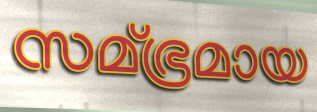
സമ്ഭ്രമായ